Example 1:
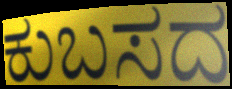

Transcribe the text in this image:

ಕುಬಸದ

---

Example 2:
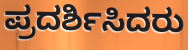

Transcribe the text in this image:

ಪ್ರದರ್ಶಿಸಿದರು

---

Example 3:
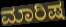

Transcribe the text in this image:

ಮಾರಿಷ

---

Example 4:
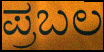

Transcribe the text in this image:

ಪ್ರಬಲ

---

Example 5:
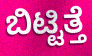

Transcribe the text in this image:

ಬಿಟ್ಟಿತ್ತೆ